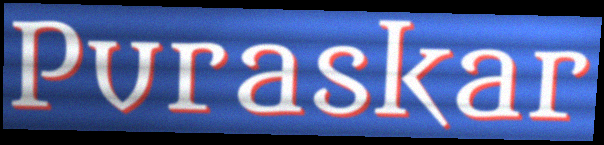
Puraskar